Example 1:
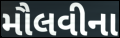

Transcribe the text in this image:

મૌલવીના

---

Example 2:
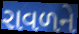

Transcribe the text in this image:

રાવળને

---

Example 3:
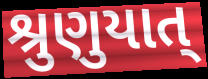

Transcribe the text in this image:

શ્રુણુયાત્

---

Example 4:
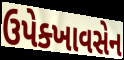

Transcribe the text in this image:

ઉપેક્ખાવસેન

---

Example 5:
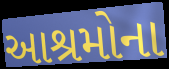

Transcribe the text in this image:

આશ્રમોના